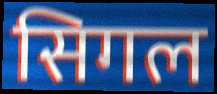
सिगल